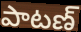
పాటణ్